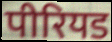
पीरियड